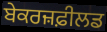
ਬੇਕਰਜ਼ਫ਼ੀਲਡ